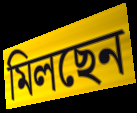
মিলছেন